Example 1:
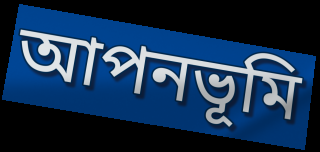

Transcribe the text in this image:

আপনভূমি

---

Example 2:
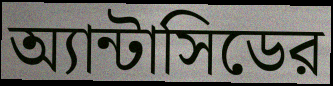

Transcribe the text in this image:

অ্যান্টাসিডের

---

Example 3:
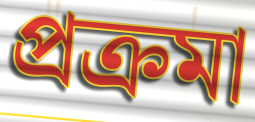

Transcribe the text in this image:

প্রক্রমা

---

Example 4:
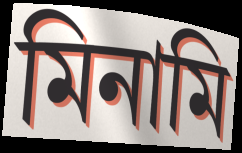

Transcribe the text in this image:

মিনামি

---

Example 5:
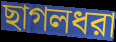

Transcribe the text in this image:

ছাগলধরা